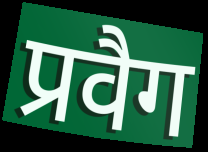
प्रवैग